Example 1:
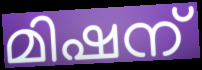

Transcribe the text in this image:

മിഷന്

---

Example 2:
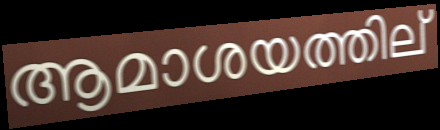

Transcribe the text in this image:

ആമാശയത്തില്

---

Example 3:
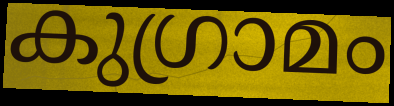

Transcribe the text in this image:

കുഗ്രാമം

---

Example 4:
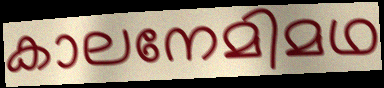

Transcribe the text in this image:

കാലനേമിമഥ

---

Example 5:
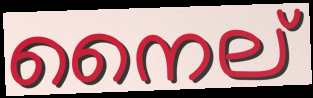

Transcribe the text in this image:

നൈല്